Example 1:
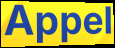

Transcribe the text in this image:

Appel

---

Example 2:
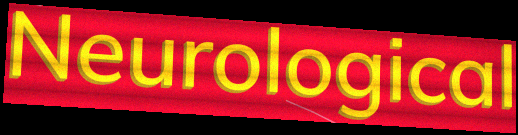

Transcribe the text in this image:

Neurological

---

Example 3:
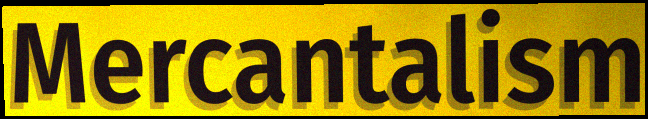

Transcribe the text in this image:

Mercantalism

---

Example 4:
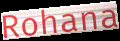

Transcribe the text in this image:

Rohana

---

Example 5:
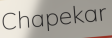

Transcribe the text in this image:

Chapekar